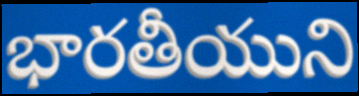
భారతీయుని